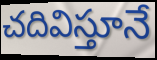
చదివిస్తూనే